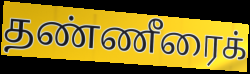
தண்ணீரைக்